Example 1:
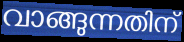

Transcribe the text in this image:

വാങ്ങുന്നതിന്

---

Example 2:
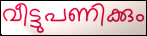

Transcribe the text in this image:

വീട്ടുപണിക്കും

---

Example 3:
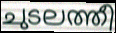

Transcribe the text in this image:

ചുടലത്തീ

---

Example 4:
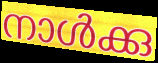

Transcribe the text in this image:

നാൾക്കു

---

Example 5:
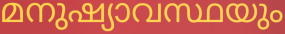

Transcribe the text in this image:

മനുഷ്യാവസ്ഥയും